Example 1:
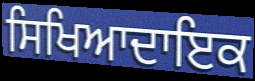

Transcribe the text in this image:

ਸਿਖਿਆਦਾਇਕ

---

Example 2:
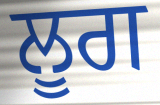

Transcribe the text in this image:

ਲੂਗ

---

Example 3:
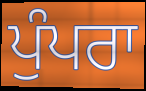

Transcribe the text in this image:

ਪੁੰਪਰਾ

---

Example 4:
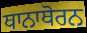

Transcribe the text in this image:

ਥਾਨਾਥੋਰਨ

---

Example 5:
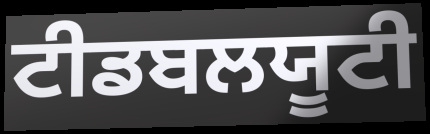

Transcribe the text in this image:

ਟੀਡਬਲਯੂਟੀ